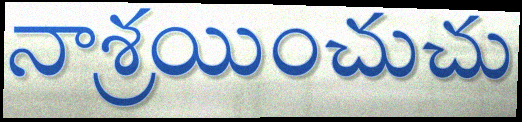
నాశ్రయించుచు